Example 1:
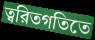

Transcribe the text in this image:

ত্বরিতগতিতে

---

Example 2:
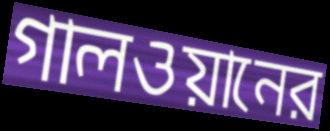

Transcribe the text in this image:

গালওয়ানের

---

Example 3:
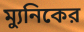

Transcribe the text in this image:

ম্যুনিকের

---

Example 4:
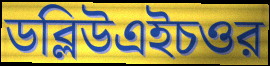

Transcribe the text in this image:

ডব্লিউএইচওর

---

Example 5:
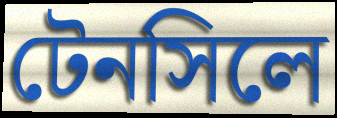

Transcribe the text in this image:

টেনসিলে